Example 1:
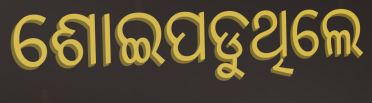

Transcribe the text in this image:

ଶୋଇପଡୁଥିଲେ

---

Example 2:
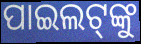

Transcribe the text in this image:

ପାଇଲଟ୍‌ଙ୍କୁ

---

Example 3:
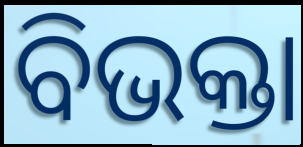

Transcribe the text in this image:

ବିଭକ୍ତା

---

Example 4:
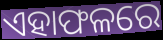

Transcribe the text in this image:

ଏହାଫଳରେ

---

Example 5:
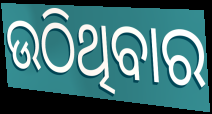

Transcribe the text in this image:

ଉଠିଥିବାର